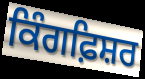
ਕਿੰਗਫ਼ਿਸ਼ਰ